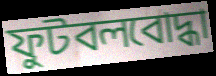
ফুটবলবোদ্ধা